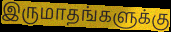
இருமாதங்களுக்கு